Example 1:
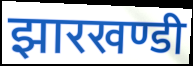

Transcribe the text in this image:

झारखण्डी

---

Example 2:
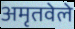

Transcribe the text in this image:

अमृतवेले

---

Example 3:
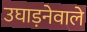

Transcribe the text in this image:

उघाड़नेवाले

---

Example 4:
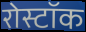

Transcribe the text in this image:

रोस्टॉक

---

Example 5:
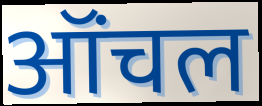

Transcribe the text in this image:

ऑंचल